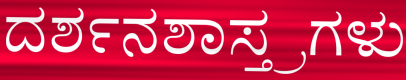
ದರ್ಶನಶಾಸ್ತ್ರಗಳು